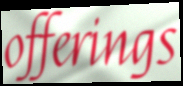
offerings